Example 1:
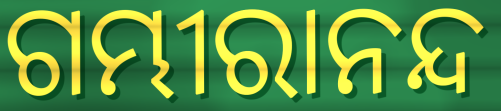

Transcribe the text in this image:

ଗମ୍ଭୀରାନନ୍ଦ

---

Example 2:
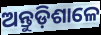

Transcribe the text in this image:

ଅନ୍ତୁଡ଼ିଶାଳେ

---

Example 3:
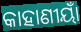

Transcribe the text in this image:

କାହାଣୀୟାଁ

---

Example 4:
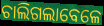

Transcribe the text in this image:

ଚାଲିଗଲାବେଳେ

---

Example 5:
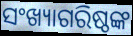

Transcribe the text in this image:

ସଂଖ୍ୟାଗରିଷ୍ଠଙ୍କ